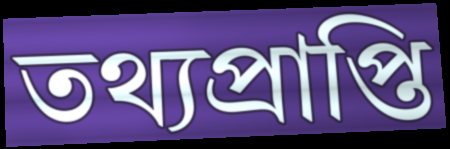
তথ্যপ্রাপ্তি